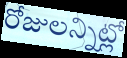
రోజులన్నిట్లో